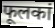
फूलकां